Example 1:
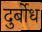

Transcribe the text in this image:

दुर्बोध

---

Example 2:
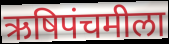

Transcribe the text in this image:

ऋषिपंचमीला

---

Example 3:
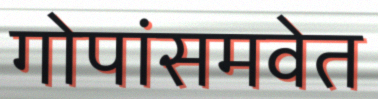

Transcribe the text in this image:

गोपांसमवेत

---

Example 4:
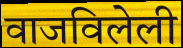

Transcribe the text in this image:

वाजविलेली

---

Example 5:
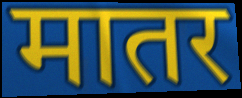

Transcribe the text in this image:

मातर